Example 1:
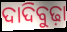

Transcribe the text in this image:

ଦାଦିବୁଢ଼ା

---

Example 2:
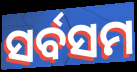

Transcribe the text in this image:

ସର୍ବସମ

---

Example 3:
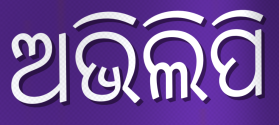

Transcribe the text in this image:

ଅଭିଲିପି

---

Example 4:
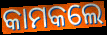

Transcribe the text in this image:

କାମକଲେ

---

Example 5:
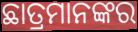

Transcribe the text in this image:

ଛାତ୍ରମାନଙ୍କର